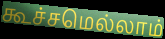
கூச்சமெல்லாம்